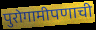
पुरोगामीपणाची